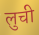
लुची